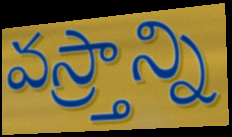
వస్ర్తాన్ని